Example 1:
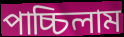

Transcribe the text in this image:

পাচ্চিলাম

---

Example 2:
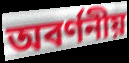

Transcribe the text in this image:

অবর্ণনীয়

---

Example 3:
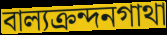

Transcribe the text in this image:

বাল্যক্রন্দনগাথা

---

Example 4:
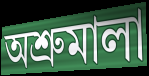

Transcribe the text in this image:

অশ্রুমালা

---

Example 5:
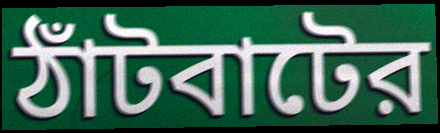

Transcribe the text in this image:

ঠাঁটবাটের